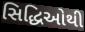
સિદ્ધિઓથી